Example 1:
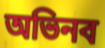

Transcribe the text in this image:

অভিনব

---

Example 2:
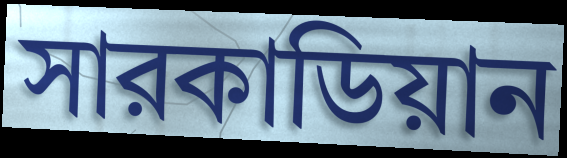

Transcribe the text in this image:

সারকাডিয়ান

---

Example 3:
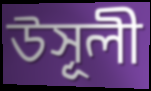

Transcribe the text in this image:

উসূলী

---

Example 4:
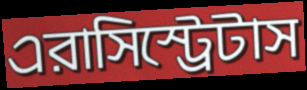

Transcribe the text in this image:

এরাসিস্ট্রেটাস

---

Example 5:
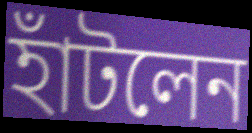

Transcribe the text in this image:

হাঁটলেন